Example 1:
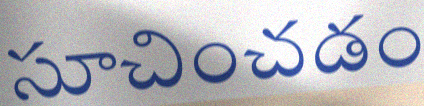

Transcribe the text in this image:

సూచించడం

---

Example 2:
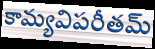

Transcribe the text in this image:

కామ్యవిపరీతమ్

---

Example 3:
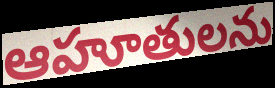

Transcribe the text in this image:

ఆహూతులను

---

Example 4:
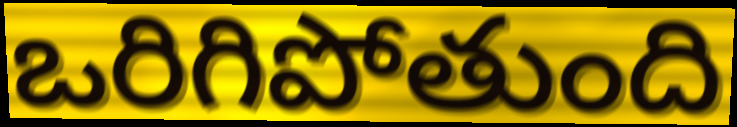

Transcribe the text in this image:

ఒరిగిపోతుంది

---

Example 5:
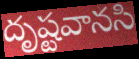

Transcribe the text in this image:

దృష్టవానసి